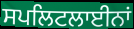
ਸਪਲਿਟਲਾਈਨਾਂ